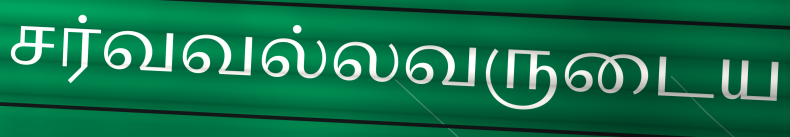
சர்வவல்லவருடைய